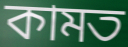
কামত